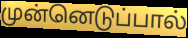
முன்னெடுப்பால்